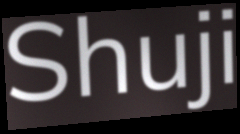
Shuji